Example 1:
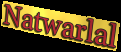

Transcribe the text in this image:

Natwarlal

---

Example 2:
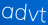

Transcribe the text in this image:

advt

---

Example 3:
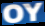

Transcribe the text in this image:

OY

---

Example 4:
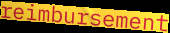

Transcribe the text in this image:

reimbursement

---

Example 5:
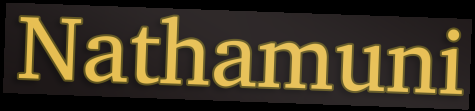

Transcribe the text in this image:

Nathamuni